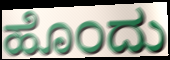
ಹೊಂದು